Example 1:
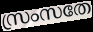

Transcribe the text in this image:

സ്രംസതേ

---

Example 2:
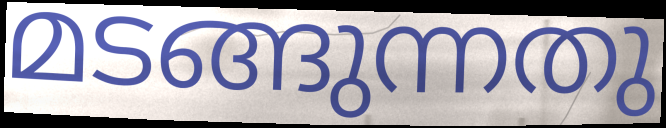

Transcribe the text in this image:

മടങ്ങുന്നതു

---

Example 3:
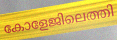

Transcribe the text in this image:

കോളേജിലെത്തി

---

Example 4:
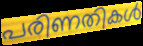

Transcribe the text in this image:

പരിണതികൾ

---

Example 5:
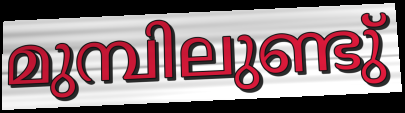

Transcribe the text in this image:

മുമ്പിലുണ്ടു്